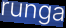
runga